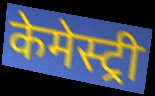
केमेस्ट्री